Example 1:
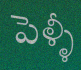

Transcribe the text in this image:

పెళ్ళీ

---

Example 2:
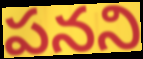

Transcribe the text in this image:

పనని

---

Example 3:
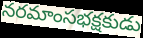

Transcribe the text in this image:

నరమాంసభక్షకుడు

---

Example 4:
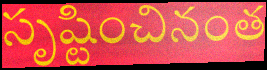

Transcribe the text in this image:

సృష్టించినంత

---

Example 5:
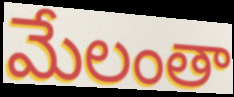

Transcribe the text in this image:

మేలంతా